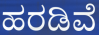
ಹರಡಿವೆ